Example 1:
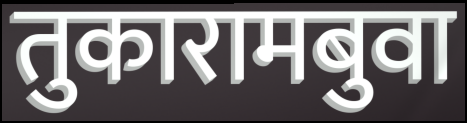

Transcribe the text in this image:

तुकारामबुवा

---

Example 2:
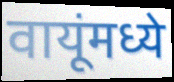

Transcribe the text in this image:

वायूंमध्ये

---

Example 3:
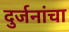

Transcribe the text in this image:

दुर्जनांचा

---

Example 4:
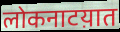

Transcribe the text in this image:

लोकनाटय़ात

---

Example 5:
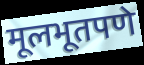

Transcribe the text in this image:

मूलभूतपणे